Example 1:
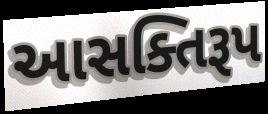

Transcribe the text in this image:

આસક્તિરૂપ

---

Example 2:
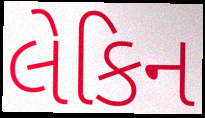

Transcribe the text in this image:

લેકિન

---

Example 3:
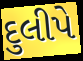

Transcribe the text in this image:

દુલીપે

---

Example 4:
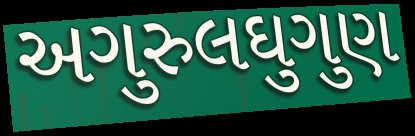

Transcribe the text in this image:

અગુરુલઘુગુણ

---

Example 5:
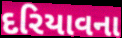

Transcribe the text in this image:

દરિયાવના